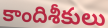
కాందిశీకులు